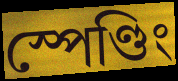
স্পেণ্ডিং